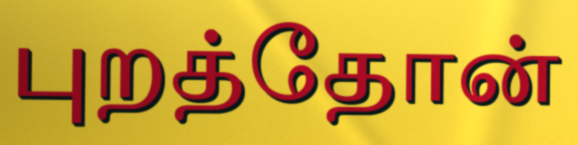
புறத்தோன்